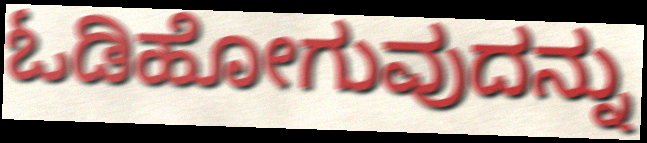
ಓಡಿಹೋಗುವುದನ್ನು